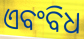
ଏବଂବିଧ